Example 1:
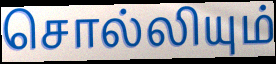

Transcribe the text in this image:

சொல்லியும்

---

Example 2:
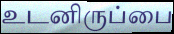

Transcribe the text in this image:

உடனிருப்பை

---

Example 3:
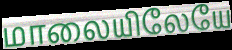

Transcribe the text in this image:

மாலையிலேயே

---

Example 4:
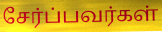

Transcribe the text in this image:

சேர்ப்பவர்கள்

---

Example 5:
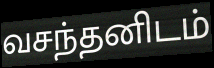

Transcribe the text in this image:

வசந்தனிடம்